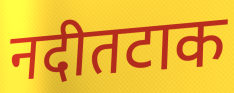
नदीतटाक